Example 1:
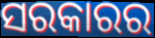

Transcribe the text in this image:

ସରକାରର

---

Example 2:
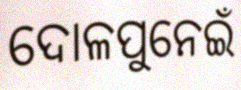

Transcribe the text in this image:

ଦୋଳପୁନେଇଁ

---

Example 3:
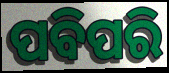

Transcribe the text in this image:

ପବିପରି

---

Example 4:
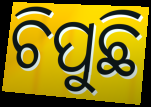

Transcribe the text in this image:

ଚିପୁଛି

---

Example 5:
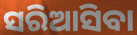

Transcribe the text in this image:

ସରିଆସିବା